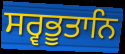
ਸਰ੍ਵਭੂਤਾਨਿ